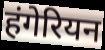
हंगेरियन